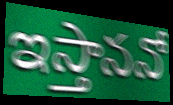
ఇస్తాననో